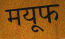
मयूफ